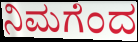
ನಿಮಗೆಂದ